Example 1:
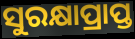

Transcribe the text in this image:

ସୁରକ୍ଷାପ୍ରାପ୍ତ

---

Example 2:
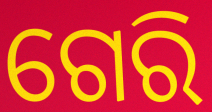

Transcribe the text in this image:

ଗେରି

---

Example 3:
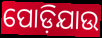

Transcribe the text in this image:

ପୋଡ଼ିଯାଉ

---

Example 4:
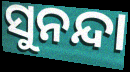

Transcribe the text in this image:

ସୁନନ୍ଦା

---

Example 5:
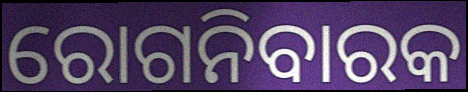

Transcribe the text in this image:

ରୋଗନିବାରକ